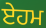
ਏਹਮ